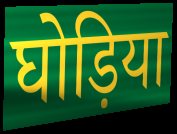
घोड़िया